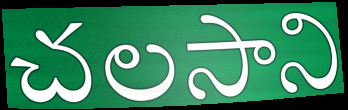
చలసాని